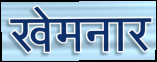
खेमनार